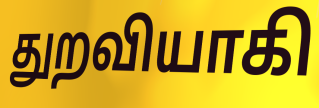
துறவியாகி